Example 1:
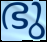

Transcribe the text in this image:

ഭു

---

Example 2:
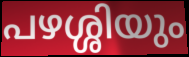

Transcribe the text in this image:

പഴശ്ശിയും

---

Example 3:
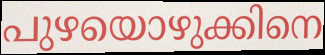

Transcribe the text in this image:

പുഴയൊഴുക്കിനെ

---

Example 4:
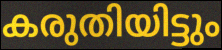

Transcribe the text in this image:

കരുതിയിട്ടും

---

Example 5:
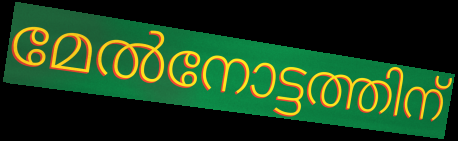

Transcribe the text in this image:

മേൽനോട്ടത്തിന്